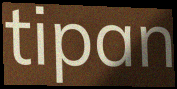
tipan